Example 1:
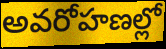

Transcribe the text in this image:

అవరోహణల్లో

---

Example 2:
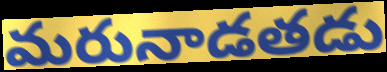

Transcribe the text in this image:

మరునాడతడు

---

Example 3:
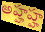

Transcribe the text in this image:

అహ్హహ్హ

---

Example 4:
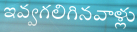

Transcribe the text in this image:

ఇవ్వగలిగినవాళ్లు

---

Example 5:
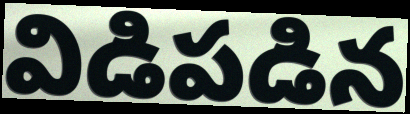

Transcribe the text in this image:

విడిపడిన